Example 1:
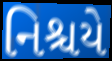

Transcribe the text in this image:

નિશ્ચયે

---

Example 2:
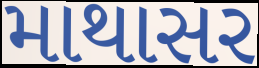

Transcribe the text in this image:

માથાસર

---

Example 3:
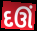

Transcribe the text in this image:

દઊં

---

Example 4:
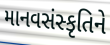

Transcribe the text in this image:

માનવસંસ્કૃતિને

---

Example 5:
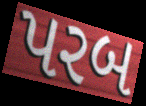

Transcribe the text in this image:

પરબ